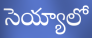
సెయ్యాలో